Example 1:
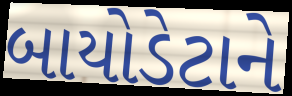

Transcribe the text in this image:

બાયોડેટાને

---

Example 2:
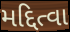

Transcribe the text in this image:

મદ્દિત્વા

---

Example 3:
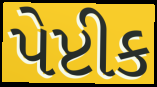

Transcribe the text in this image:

પેપ્ટીક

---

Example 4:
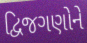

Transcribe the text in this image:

દ્વિજગણોને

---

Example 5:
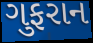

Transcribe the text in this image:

ગુફરાન